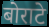
बोराटे